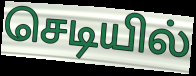
செடியில்